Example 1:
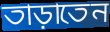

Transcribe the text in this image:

তাড়াতেন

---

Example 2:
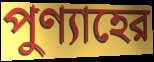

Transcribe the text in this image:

পুণ্যাহের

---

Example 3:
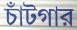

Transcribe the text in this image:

চাঁটগার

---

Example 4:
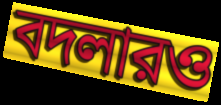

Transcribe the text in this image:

বদলারও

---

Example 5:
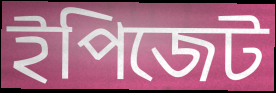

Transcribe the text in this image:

ইপিজেট